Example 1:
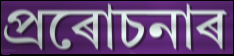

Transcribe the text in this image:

প্ৰৰোচনাৰ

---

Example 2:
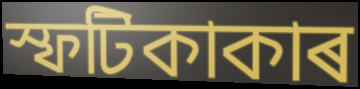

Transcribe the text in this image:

স্ফটিকাকাৰ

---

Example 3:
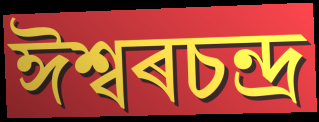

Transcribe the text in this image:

ঈশ্বৰচন্দ্ৰ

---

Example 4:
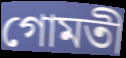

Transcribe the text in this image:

গোমতী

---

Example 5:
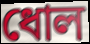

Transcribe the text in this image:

ধোল